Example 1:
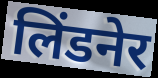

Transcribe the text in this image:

लिंडनेर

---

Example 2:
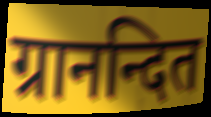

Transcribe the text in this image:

ग्रानन्दित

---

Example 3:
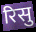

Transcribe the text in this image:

रिसु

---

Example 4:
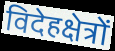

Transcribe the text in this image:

विदेहक्षेत्रों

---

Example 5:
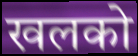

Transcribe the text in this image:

खलको